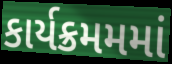
કાર્યક્રમમમાં